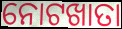
ନୋଟଖାତା